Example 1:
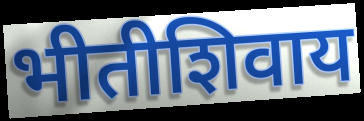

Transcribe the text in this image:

भीतीशिवाय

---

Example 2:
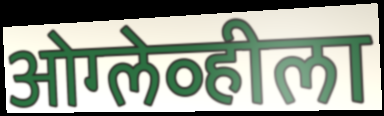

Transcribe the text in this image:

ओग्लेव्हीला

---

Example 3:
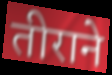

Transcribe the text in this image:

तीराने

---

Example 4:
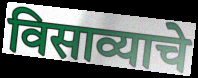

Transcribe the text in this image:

विसाव्याचे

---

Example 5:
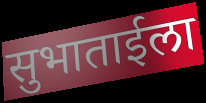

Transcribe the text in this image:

सुभाताईला